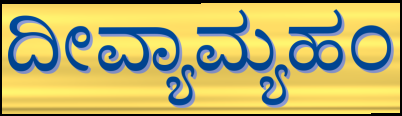
ದೀವ್ಯಾಮ್ಯಹಂ